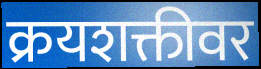
क्रयशक्तीवर